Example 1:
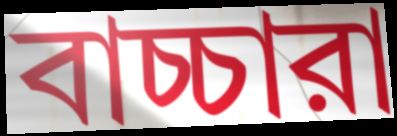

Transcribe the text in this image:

বাচ্চারা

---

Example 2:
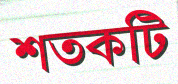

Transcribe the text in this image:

শতকটি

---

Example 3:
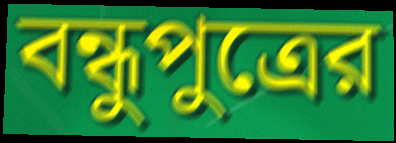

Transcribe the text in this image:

বন্ধুপুত্রের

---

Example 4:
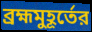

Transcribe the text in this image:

ব্রহ্মমুহূর্তের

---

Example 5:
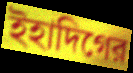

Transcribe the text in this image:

ইহাদিগের